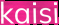
kaisi